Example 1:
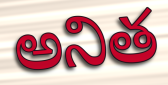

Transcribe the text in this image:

అనిత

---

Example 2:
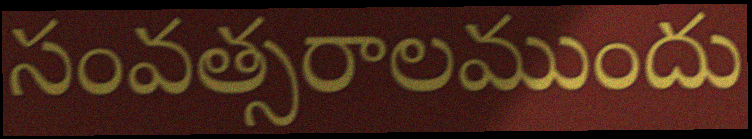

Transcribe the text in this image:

సంవత్సరాలముందు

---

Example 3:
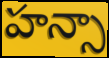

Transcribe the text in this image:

హన్సా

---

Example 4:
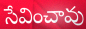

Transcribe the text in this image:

సేవించావు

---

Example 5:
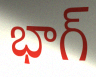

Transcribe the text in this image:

భాగ్